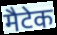
मैटेक